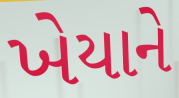
ખેયાને